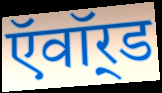
ऍवॉर्ड